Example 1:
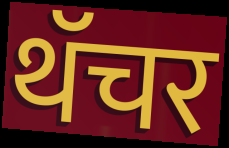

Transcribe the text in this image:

थॅचर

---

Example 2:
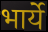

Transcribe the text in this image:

भार्ये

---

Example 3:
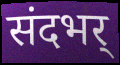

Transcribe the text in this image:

संदभर्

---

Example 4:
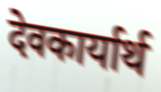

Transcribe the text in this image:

देवकार्यार्थ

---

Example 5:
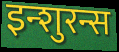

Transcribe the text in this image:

इन्शुरन्स